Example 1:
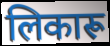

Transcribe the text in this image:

लिकारू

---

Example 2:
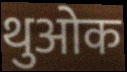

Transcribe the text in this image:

थुओक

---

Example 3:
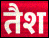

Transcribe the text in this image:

तैश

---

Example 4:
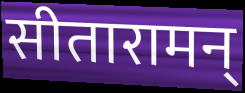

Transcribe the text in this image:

सीतारामन्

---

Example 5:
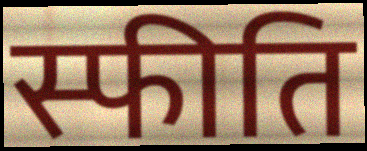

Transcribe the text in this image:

स्फीति